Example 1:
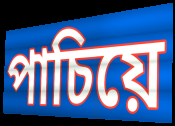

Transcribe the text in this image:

পাচিয়ে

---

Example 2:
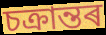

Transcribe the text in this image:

চক্ৰান্তৰ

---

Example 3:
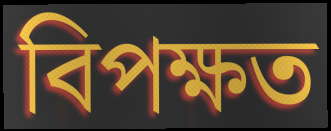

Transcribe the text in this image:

বিপক্ষত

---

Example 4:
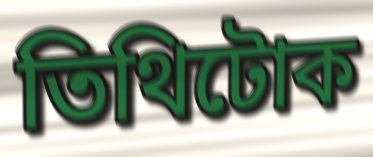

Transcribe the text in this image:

তিথিটোক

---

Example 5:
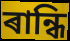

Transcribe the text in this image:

ৰান্ধি